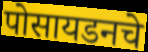
पोसायडनचे